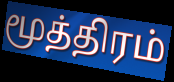
மூத்திரம்